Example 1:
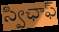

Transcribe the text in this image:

స్విఛాఫ్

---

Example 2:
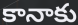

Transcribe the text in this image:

కానాకు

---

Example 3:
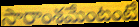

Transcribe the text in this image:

సారాంశమేంటంటే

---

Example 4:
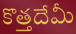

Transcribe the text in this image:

కొత్తదేమీ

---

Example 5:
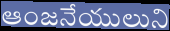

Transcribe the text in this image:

ఆంజనేయులుని